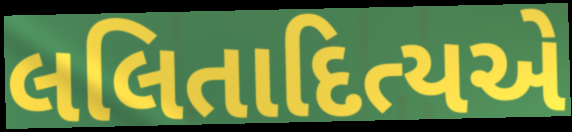
લલિતાદિત્યએ